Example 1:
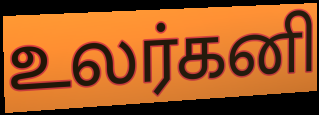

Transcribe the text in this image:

உலர்கனி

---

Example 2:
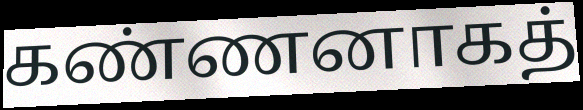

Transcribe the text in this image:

கண்ணனாகத்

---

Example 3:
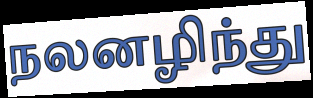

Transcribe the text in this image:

நலனழிந்து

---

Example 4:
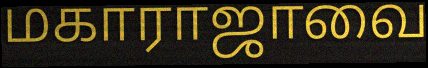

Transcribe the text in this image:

மகாராஜாவை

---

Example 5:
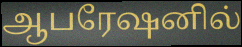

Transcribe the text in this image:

ஆபரேஷனில்